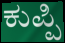
ಕುಪ್ಪಿ